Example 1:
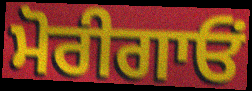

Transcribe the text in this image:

ਮੋਰੀਗਾਓਂ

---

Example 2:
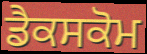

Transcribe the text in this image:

ਡੈਕਸਕੋਮ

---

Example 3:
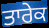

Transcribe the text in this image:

ਤਾਰੇਕ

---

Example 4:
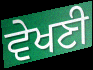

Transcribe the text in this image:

ਵੇਖਣੀ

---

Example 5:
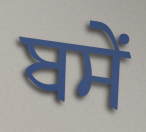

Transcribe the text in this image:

ਬਸੇਂ